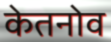
केतनोव